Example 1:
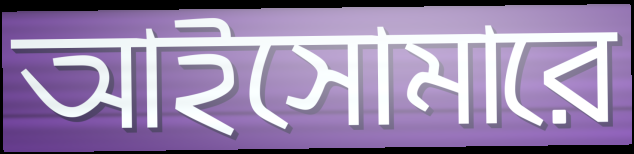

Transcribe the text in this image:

আইসোমারে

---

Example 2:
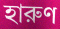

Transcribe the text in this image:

হারুণ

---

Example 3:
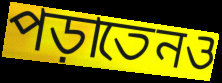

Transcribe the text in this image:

পড়াতেনও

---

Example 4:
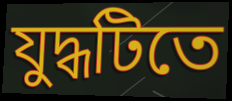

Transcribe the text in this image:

যুদ্ধটিতে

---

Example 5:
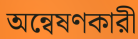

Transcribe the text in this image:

অন্বেষণকারী